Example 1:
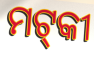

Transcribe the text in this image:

ମଟ୍‌କୀ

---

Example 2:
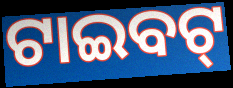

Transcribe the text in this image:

ଟାଇବଟ୍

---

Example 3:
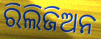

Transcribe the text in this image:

ରିଲିଜିଅନ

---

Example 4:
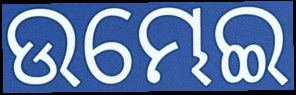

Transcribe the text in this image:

ଉମ୍ଭେଇ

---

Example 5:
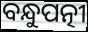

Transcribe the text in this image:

ବନ୍ଧୁପତ୍ନୀ